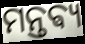
ମନ୍ତଵ୍ୟ